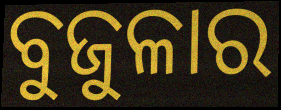
ବୁଜୁଳାର